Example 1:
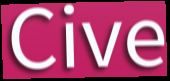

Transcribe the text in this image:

Cive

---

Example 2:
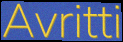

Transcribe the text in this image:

Avritti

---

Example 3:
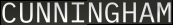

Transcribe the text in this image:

CUNNINGHAM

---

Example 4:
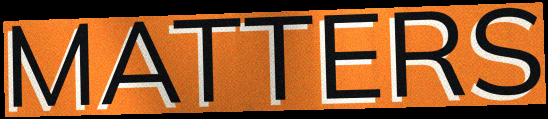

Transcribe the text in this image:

MATTERS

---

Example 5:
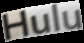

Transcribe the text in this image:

Hulu